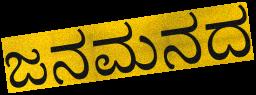
ಜನಮನದ